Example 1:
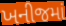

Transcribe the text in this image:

ખનીજમાં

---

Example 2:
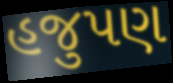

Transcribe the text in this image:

હજુપણ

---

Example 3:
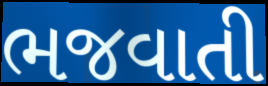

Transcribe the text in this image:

ભજવાતી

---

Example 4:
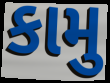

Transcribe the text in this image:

કામુ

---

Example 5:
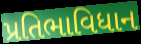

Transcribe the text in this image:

પ્રતિભાવિધાન